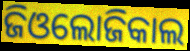
ଜିଓଲୋଜିକାଲ